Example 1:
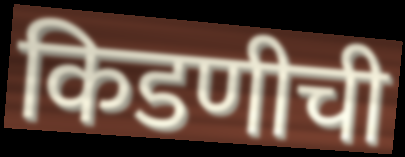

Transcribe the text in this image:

किडणीची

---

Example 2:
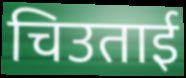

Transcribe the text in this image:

चिउताई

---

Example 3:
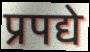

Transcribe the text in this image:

प्रपद्ये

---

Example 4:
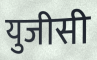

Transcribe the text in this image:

युजीसी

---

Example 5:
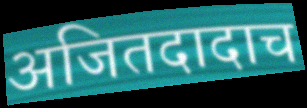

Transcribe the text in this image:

अजितदादाच